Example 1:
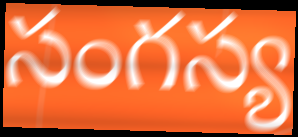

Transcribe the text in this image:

సంగస్య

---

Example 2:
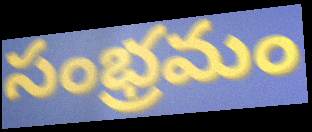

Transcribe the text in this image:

సంభ్రమం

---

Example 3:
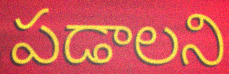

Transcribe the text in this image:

పడాలని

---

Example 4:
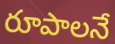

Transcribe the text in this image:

రూపాలనే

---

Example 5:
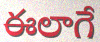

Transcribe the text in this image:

ఈలాగే